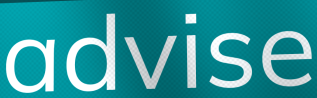
advise